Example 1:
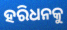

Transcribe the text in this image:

ହରିଧନକୁ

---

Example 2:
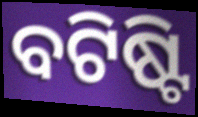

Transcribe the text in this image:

ବଟିଷ୍ଟି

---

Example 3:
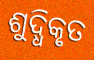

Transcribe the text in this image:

ଶୁଦ୍ଧିକୃତ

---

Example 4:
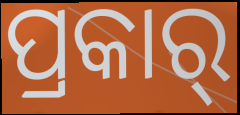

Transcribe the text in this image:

ପ୍ରକାର୍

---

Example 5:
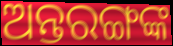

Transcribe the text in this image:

ଅନ୍ତରଙ୍ଗଙ୍କ